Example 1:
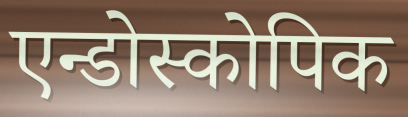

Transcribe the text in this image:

एन्डोस्कोपिक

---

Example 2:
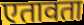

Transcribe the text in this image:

एतावता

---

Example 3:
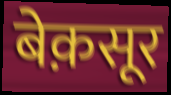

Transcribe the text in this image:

बेक़सूर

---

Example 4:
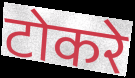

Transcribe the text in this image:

टोकरे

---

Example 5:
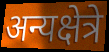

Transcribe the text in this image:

अन्यक्षेत्रे